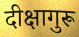
दीक्षागुरू